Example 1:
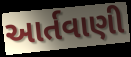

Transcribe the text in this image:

આર્તવાણી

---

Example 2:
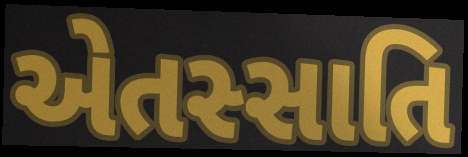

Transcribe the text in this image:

એતસ્સાતિ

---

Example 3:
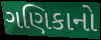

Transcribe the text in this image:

ગણિકાનો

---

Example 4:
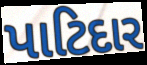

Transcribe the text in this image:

પાટિદાર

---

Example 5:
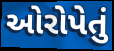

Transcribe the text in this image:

ઓરોપેતું